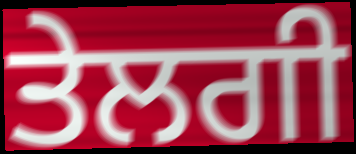
ਤੇਲਗੀ